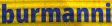
burmanni